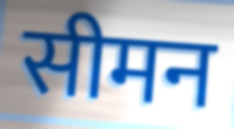
सीमन